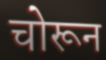
चोरून